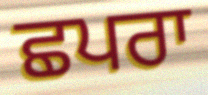
ਛਪਰਾ